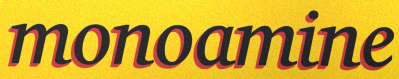
monoamine